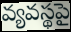
వ్యవస్థపై